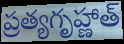
ప్రత్యగృహ్ణాత్